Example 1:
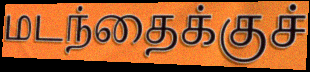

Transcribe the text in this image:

மடந்தைக்குச்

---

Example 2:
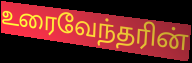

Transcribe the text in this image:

உரைவேந்தரின்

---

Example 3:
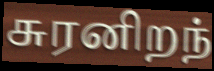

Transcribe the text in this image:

சுரனிறந்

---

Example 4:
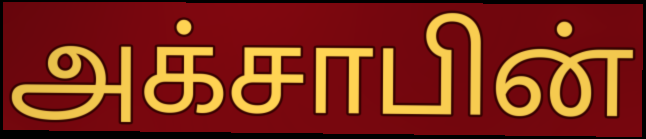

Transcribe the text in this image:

அக்சாபின்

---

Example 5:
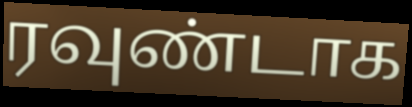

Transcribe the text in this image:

ரவுண்டாக